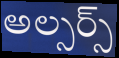
అల్సర్స్